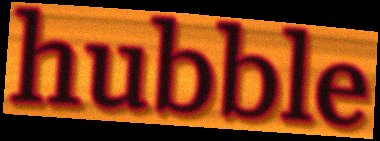
hubble